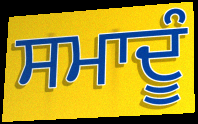
ਸਮਾਦੂੰ